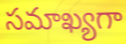
సమాఖ్యగా